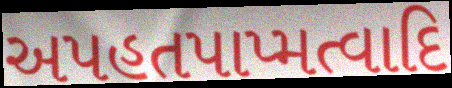
અપહતપાપ્મત્વાદિ